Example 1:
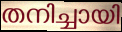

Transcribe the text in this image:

തനിച്ചായി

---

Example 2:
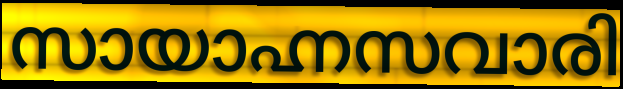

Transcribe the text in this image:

സായാഹ്നസവാരി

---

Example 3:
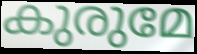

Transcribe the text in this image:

കുരുമേ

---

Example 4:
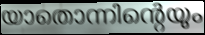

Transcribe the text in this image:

യാതൊന്നിന്റെയും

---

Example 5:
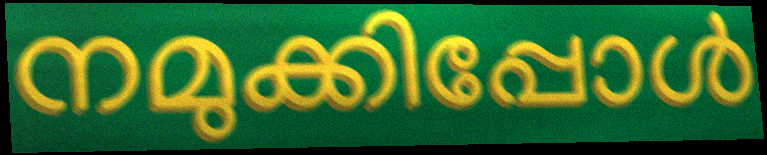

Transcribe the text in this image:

നമുക്കിപ്പോൾ